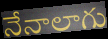
నేనాలాగు